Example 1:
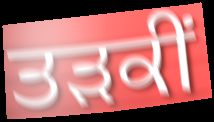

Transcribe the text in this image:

ਤੜਕੀਂ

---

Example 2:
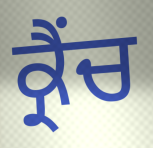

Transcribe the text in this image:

ਕ੍ਰੈਂਚ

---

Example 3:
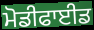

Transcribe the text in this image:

ਮੋਡੀਫਾਈਡ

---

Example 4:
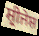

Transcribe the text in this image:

ਸ਼੍ਰੀਜੇਸ਼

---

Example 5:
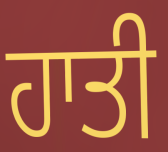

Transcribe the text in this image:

ਹਾਤੀ